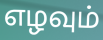
எழவும்